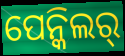
ପେନ୍କିଲର୍